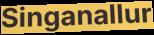
Singanallur